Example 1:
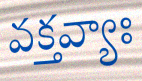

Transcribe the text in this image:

వక్తవ్యాః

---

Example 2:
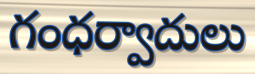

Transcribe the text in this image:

గంధర్వాదులు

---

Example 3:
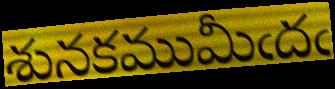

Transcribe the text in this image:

శునకముమీఁదఁ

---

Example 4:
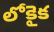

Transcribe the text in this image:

లోకైక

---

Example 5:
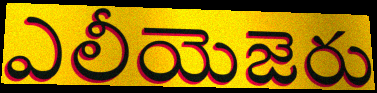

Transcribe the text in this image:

ఎలీయెజెరు